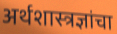
अर्थशास्त्रज्ञांचा